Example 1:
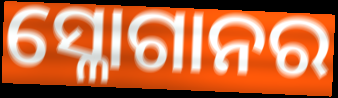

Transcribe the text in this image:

ସ୍ଳୋଗାନର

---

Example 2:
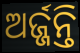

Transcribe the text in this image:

ଅର୍ଜ୍ଜନ୍ତି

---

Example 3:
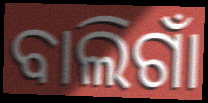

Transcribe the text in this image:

ବାଲିଗାଁ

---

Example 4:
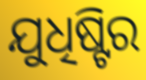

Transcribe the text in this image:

ଯୁଧିଷ୍ଟିର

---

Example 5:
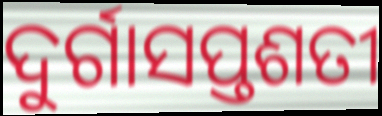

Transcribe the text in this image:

ଦୁର୍ଗାସପ୍ତଶତୀ